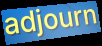
adjourn